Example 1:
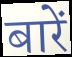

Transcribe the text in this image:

बारें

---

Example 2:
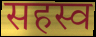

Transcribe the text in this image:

सहस्व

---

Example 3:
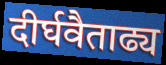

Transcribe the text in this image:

दीर्घवैताढ्य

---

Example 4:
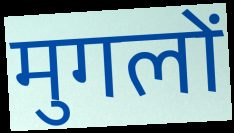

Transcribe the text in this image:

मुगलों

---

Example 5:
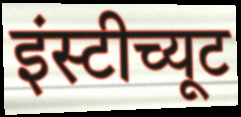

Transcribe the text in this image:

इंस्‍टीच्‍यूट